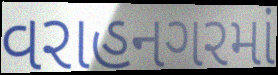
વરાહનગરમાં